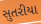
સુતરીયા